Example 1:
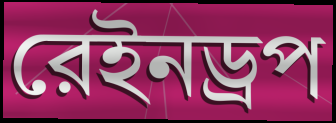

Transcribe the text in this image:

রেইনড্রপ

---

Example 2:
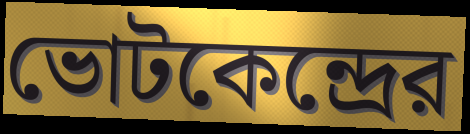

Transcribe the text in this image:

ভোটকেন্দ্রের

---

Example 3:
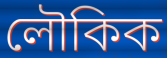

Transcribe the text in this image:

লৌকিক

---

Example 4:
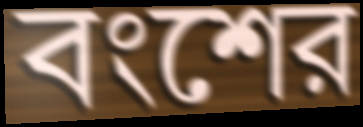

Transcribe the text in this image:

বংশের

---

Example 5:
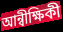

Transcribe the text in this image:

আন্বীক্ষিকী